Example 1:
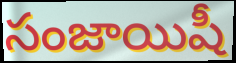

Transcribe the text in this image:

సంజాయిషీ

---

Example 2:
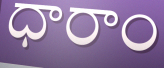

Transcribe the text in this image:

ధారాం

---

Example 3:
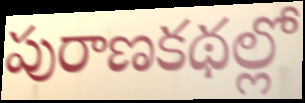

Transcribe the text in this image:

పురాణకథల్లో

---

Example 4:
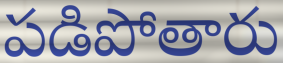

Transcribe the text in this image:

పడిపోతారు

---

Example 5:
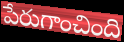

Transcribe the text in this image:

పేరుగాంచింది